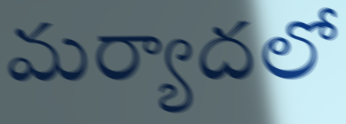
మర్యాదలో